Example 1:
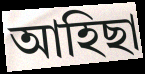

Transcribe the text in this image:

আহিছা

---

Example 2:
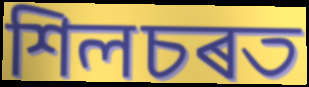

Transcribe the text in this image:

শিলচৰত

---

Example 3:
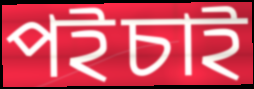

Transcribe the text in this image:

পইচাই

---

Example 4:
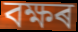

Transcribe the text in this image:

বক্ষৰ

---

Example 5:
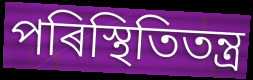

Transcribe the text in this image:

পৰিস্থিতিতন্ত্ৰ